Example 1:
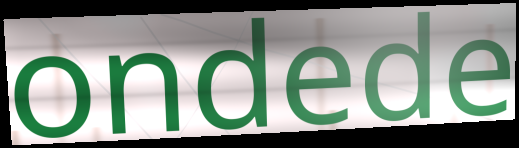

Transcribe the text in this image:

ondede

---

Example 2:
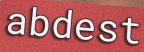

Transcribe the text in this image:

abdest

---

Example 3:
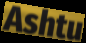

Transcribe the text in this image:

Ashtu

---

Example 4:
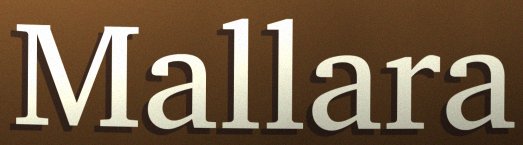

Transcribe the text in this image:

Mallara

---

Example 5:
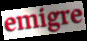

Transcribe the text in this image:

emigre